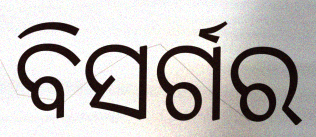
ବିସର୍ଗର